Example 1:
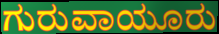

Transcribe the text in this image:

ಗುರುವಾಯೂರು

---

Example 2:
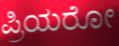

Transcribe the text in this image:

ಪ್ರಿಯರೋ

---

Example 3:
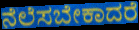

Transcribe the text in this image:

ನೆಲೆಸಬೇಕಾದರೆ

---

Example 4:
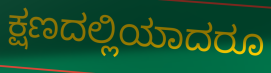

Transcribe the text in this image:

ಕ್ಷಣದಲ್ಲಿಯಾದರೂ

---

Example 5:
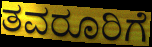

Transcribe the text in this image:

ತವರೂರಿಗೆ